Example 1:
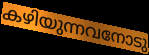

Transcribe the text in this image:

കഴിയുന്നവനോടു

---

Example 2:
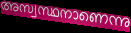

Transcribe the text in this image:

അസ്വസ്ഥനാണെന്നു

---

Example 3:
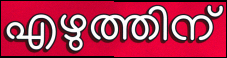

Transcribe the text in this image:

എഴുത്തിന്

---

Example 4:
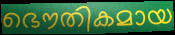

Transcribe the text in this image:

ഭൌതികമായ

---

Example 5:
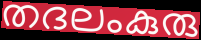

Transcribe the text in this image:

തദലംകുരു